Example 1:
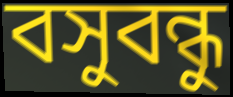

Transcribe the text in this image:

বসুবন্ধু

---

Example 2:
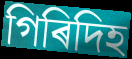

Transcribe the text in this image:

গিৰিদিহ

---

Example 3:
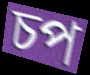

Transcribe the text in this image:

চপ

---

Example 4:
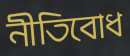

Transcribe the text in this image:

নীতিবোধ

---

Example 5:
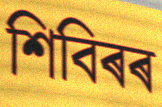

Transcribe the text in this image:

শিবিৰৰ